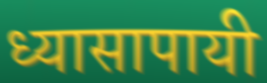
ध्यासापायी